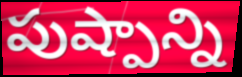
పుష్పాన్ని